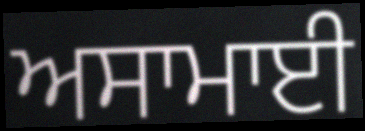
ਅਸਾਮਾਈ